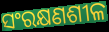
ସଂରକ୍ଷଣଶୀଳ